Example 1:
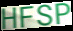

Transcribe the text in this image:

HFSP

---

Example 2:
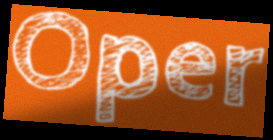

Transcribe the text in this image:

Oper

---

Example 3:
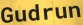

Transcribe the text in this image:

Gudrun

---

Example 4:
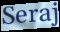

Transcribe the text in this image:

Seraj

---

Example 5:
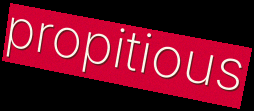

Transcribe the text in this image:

propitious